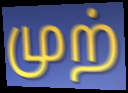
முற்